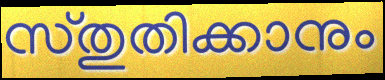
സ്തുതിക്കാനും